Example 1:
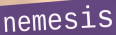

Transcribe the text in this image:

nemesis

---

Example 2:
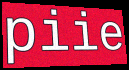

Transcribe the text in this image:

piie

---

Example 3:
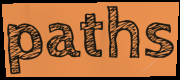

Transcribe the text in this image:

paths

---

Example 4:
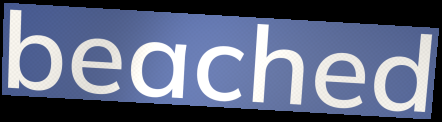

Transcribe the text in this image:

beached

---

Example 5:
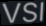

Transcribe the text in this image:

VSI